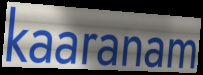
kaaranam